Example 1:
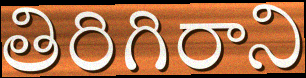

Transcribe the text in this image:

తిరిగిరాని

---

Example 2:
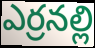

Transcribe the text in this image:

ఎర్రనల్లి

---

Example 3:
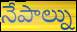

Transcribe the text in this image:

నేపాల్ను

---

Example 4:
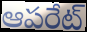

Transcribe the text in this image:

ఆపరేట్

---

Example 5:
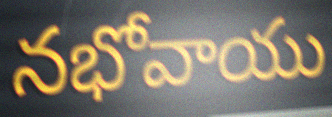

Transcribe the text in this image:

నభోవాయు